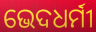
ଭେଦଧର୍ମୀ